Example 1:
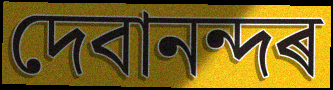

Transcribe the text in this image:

দেবানন্দৰ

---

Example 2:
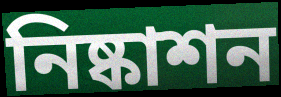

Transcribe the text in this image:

নিষ্কাশন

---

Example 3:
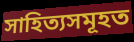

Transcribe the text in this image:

সাহিত্যসমূহত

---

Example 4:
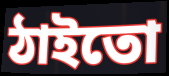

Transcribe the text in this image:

ঠাইতো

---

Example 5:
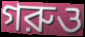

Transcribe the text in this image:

গৰুও